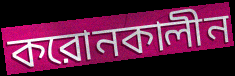
করোনকালীন